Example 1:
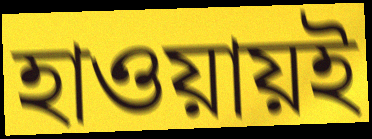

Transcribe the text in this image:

হাওয়ায়ই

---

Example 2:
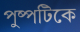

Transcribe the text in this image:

পুষ্পটিকে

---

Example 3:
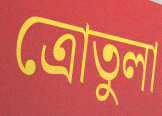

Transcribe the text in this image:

ত্রোতুলা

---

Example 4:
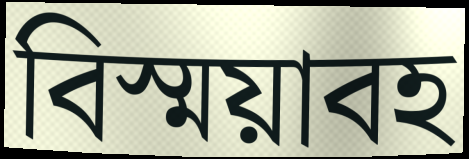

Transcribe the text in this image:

বিস্ময়াবহ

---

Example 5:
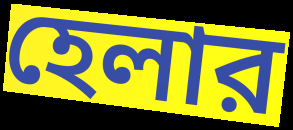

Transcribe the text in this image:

হেলার